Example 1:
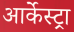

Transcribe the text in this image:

आर्केस्ट्रा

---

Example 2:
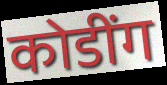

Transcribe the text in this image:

कोडींग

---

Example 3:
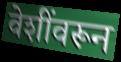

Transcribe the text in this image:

वेशींवरून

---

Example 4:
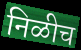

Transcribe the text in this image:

निळीच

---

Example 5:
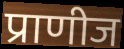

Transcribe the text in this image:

प्राणीज